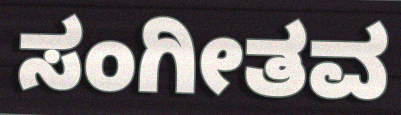
ಸಂಗೀತವ